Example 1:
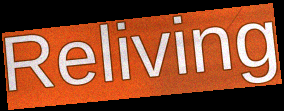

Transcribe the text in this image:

Reliving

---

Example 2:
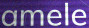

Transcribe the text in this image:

amele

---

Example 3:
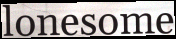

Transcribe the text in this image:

lonesome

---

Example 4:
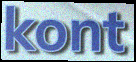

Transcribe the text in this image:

kont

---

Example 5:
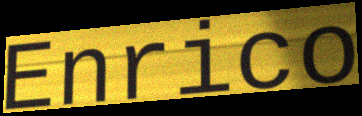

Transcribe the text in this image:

Enrico